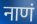
नाणं